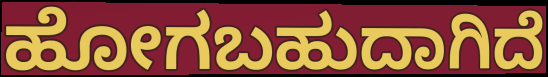
ಹೋಗಬಹುದಾಗಿದೆ